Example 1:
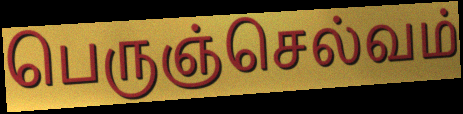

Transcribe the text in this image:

பெருஞ்செல்வம்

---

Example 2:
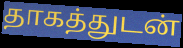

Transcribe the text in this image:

தாகத்துடன்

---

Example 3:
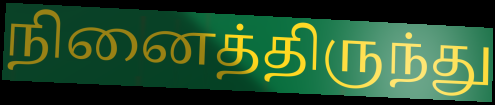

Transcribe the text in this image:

நினைத்திருந்து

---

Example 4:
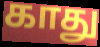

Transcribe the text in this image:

காது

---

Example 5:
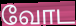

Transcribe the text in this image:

வோட